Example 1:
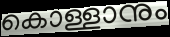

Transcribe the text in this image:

കൊള്ളാനും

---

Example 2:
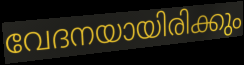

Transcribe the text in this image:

വേദനയായിരിക്കും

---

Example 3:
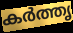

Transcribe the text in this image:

കർത്തൃ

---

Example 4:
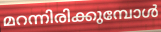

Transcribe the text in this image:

മറന്നിരിക്കുമ്പോൾ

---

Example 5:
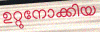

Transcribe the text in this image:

ഉറ്റുനോക്കിയ